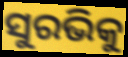
ସୁରଭିକୁ